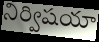
నిర్విషయా